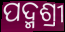
ପଦ୍ମଶ୍ରୀ